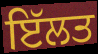
ਇੱਲਤ